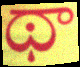
థా